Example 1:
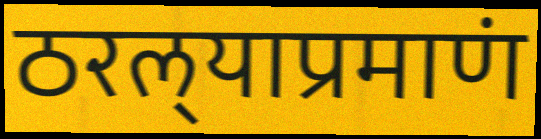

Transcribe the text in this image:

ठरल्याप्रमाणं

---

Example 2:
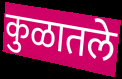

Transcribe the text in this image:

कुळातले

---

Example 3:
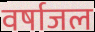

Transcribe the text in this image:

वर्षाजल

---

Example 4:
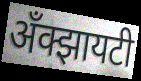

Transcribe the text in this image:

अँक्झायटी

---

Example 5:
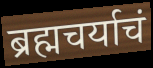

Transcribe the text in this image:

ब्रह्मचर्याचं